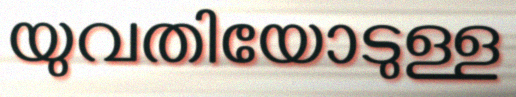
യുവതിയോടുള്ള